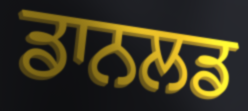
ਡਾਨਲਡ